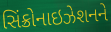
સિંક્રોનાઇઝેશનને